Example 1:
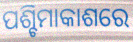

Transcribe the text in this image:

ପଶ୍ଚିମାକାଶରେ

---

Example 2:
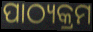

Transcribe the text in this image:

ପାଠ୍ୟକ୍ରମ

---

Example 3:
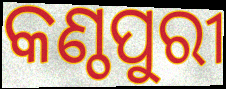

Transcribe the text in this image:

କଣ୍ଠପୁରୀ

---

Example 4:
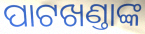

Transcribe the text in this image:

ପାଟଖଣ୍ତାଙ୍କ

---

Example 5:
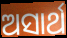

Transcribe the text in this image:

ଅସାର୍ଥ